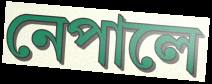
নেপালে